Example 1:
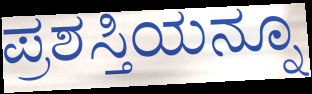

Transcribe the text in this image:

ಪ್ರಶಸ್ತಿಯನ್ನೂ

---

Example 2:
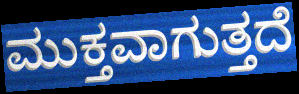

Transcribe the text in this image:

ಮುಕ್ತವಾಗುತ್ತದೆ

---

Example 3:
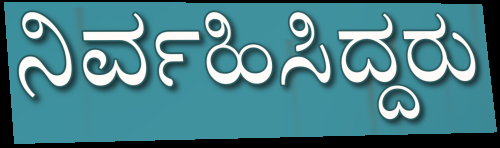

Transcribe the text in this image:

ನಿರ್ವಹಿಸಿದ್ದರು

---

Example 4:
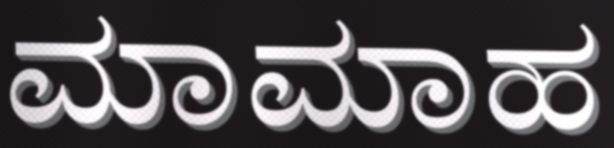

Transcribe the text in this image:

ಮಾಮಾಹ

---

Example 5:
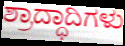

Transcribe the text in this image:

ಶ್ರಾದ್ಧಾದಿಗಳು